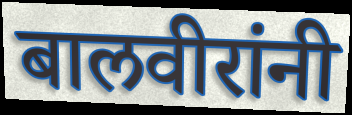
बालवीरांनी